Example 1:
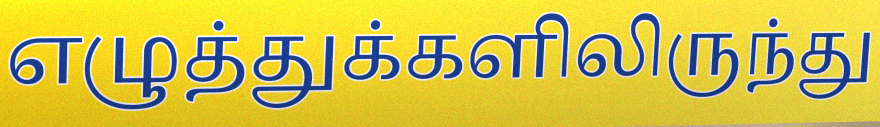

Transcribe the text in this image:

எழுத்துக்களிலிருந்து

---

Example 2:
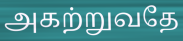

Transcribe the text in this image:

அகற்றுவதே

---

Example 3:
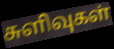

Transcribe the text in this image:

சுளிவுகள்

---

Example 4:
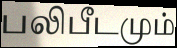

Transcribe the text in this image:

பலிபீடமும்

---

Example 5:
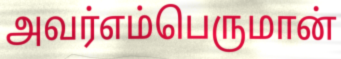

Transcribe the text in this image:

அவர்எம்பெருமான்